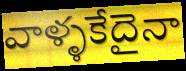
వాళ్ళకేదైనా